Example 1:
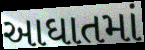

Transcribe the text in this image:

આઘાતમાં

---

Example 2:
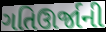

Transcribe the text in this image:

ગતિઊર્જાની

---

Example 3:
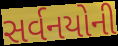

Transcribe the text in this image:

સર્વનયોની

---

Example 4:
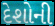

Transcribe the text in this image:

દેશોની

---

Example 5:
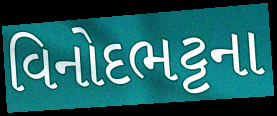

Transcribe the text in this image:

વિનોદભટ્ટના